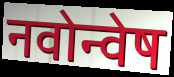
नवोन्वेष